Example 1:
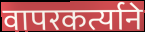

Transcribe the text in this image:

वापरकर्त्याने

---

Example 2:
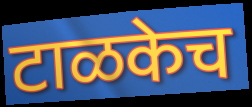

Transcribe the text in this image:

टाळकेच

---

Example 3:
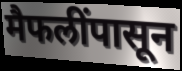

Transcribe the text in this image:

मैफलींपासून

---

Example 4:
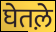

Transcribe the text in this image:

घेतल़े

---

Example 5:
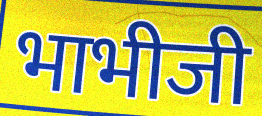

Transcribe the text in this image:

भाभीजी